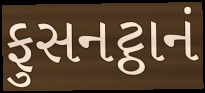
ફુસનટ્ઠાનં